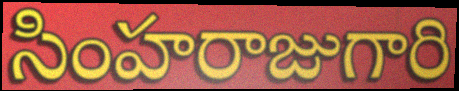
సింహరాజుగారి